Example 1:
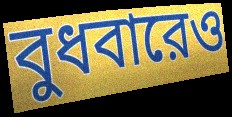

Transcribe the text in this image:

বুধবারেও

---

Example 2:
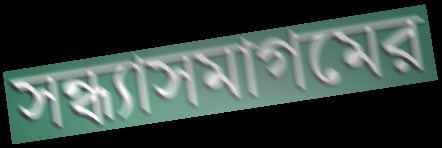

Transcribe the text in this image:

সন্ধ্যাসমাগমের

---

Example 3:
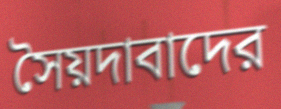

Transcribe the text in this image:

সৈয়দাবাদের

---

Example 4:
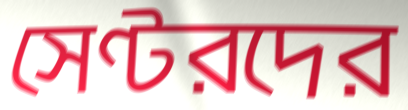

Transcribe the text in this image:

সেণ্টরদের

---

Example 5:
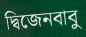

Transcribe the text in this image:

দ্বিজেনবাবু